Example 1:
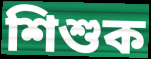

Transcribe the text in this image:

শিশুক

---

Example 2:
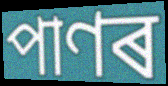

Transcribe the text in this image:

পাণৰ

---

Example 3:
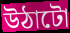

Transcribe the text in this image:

উঠাটো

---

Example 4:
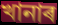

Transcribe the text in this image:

খানাৰ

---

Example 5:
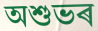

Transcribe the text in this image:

অশুভৰ